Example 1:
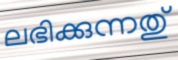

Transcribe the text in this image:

ലഭിക്കുന്നതു്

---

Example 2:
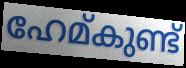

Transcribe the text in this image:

ഹേമ്കുണ്ട്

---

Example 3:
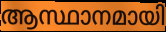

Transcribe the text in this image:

ആസ്ഥാനമായി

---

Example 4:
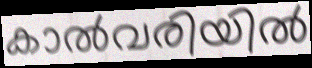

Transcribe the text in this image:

കാൽവരിയിൽ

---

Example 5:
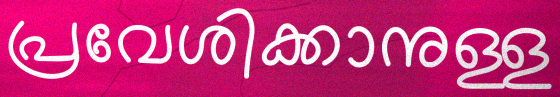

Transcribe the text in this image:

പ്രവേശിക്കാനുള്ള